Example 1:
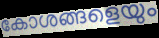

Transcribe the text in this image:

കോശങ്ങളെയും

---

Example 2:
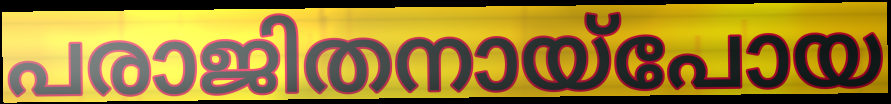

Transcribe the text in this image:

പരാജിതനായ്പോയ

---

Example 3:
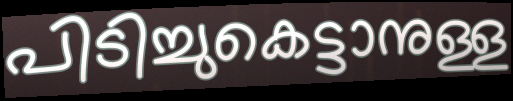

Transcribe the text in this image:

പിടിച്ചുകെട്ടാനുള്ള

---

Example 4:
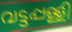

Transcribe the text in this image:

വട്ടപ്പള്ളി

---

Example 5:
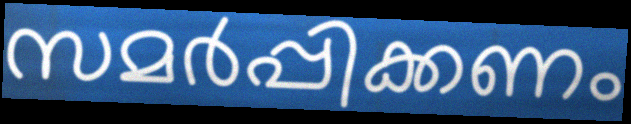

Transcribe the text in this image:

സമർപ്പിക്കണം